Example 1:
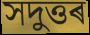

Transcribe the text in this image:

সদুত্তৰ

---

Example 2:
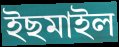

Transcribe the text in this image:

ইছমাইল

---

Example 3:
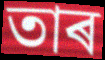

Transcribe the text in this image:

তাৰ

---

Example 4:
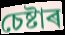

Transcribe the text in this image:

চেষ্টাৰ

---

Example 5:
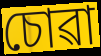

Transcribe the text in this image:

চোৱা